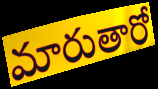
మారుతారో